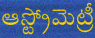
ఆస్ట్రోమెట్రీ